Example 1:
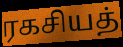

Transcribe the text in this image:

ரகசியத்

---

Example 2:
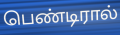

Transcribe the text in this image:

பெண்டிரால்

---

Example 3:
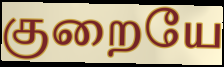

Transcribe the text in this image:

குறையே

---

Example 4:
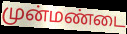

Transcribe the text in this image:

முன்மண்டை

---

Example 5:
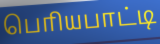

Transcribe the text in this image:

பெரியபாட்டி